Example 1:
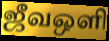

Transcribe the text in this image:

ஜீவஒளி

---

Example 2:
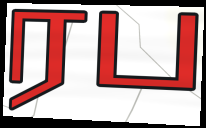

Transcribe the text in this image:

ரப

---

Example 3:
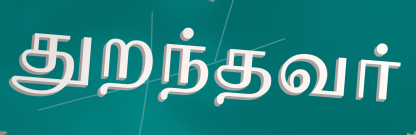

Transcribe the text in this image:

துறந்தவர்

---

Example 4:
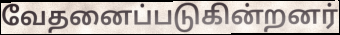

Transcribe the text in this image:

வேதனைப்படுகின்றனர்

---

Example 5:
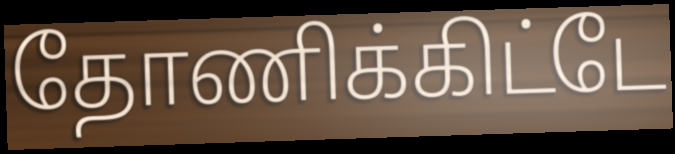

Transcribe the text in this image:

தோணிக்கிட்டே